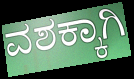
ವಶಕ್ಕಾಗಿ